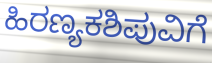
ಹಿರಣ್ಯಕಶಿಪುವಿಗೆ